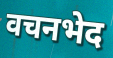
वचनभेद